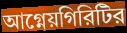
আগ্নেয়গিরিটির